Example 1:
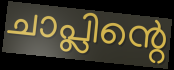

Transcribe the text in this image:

ചാപ്ലിന്റെ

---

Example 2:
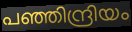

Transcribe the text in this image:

പഞ്ഞിന്ദ്രിയം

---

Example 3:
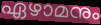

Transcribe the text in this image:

ഏഴാമനും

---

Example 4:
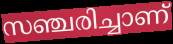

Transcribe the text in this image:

സഞ്ചരിച്ചാണ്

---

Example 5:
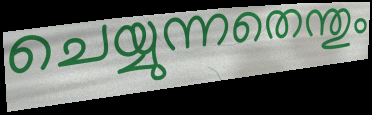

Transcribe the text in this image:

ചെയ്യുന്നതെന്തും